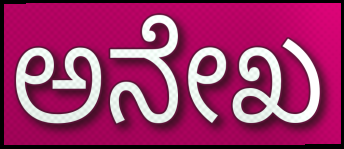
ಅನೇಖ